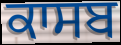
ਕਾਸਬ